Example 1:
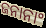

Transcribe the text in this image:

ଜନାନାଂ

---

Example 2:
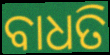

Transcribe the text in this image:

ବାଧତି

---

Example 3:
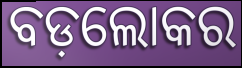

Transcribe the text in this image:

ବଡ଼ଲୋକର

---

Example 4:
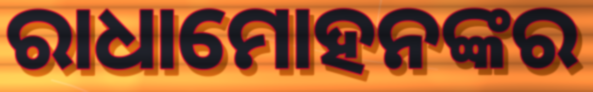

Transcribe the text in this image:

ରାଧାମୋହନଙ୍କର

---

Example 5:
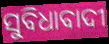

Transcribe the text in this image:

ସୁବିଧାବାଦୀ